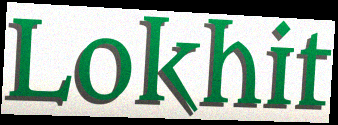
Lokhit